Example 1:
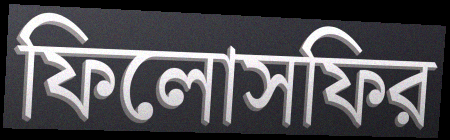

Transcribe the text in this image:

ফিলোসফির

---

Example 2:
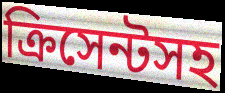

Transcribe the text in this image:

ক্রিসেন্টসহ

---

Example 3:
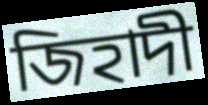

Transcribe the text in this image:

জিহাদী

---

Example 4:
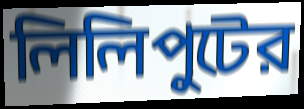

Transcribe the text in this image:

লিলিপুটের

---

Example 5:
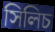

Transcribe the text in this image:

সিলিচ